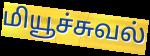
மியூச்சுவல்